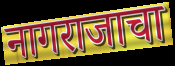
नागराजाचा